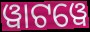
ୱାଟୱେ